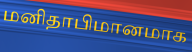
மனிதாபிமானமாக